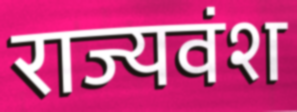
राज्यवंश